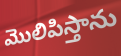
మొలిపిస్తాను